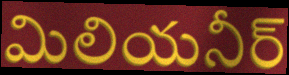
మిలియనీర్